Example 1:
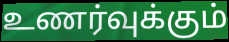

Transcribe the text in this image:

உணர்வுக்கும்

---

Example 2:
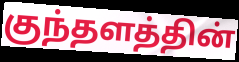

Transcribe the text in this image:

குந்தளத்தின்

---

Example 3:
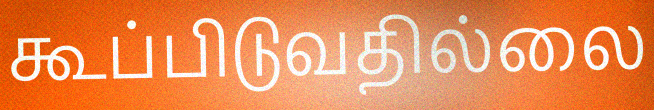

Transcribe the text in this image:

கூப்பிடுவதில்லை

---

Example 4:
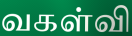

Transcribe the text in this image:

வகள்வி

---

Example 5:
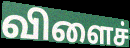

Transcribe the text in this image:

விளைச்